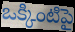
ఒక్కింటిపై